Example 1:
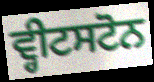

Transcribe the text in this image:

ਵ੍ਹੀਟਸਟੋਨ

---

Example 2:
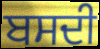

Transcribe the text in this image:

ਬਸਦੀ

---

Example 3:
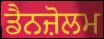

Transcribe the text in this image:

ਡੈਨਜ਼ੋਲਮ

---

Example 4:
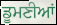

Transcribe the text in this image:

ਡੂਮਣੀਆਂ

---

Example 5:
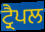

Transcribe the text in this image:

ਟ੍ਰੈਪਲ